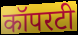
कॉपरटी